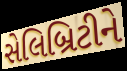
સેલિબ્રિટીને